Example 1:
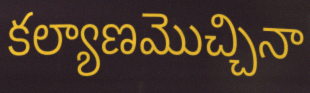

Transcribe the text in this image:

కల్యాణమొచ్చినా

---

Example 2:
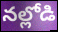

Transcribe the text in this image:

నల్లోడి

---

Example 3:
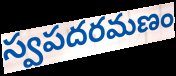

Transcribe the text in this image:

స్వపదరమణం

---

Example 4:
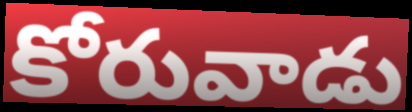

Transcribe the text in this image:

కోరువాడు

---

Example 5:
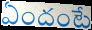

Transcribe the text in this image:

ఏందంటే